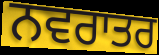
ਨਵਰਾਤਰ